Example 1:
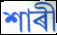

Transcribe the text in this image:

শাৰী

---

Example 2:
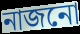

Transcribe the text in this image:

নাজনো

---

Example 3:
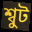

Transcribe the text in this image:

শ্বুট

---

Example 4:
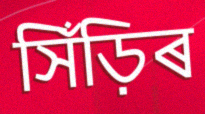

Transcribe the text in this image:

সিঁড়িৰ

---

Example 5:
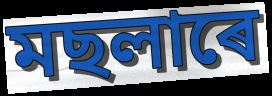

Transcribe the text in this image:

মছলাৰে